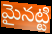
మైనట్టి